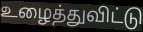
உழைத்துவிட்டு